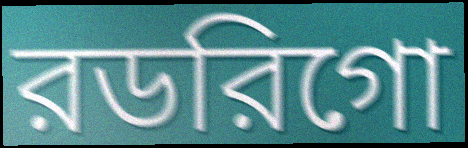
রডরিগো